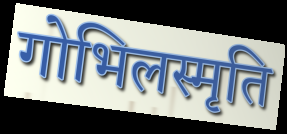
गोभिलस्मृति